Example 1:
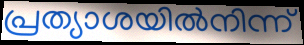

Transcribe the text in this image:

പ്രത്യാശയിൽനിന്ന്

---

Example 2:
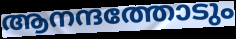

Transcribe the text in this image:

ആനന്ദത്തോടും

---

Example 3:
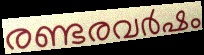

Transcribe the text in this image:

രണ്ടരവർഷം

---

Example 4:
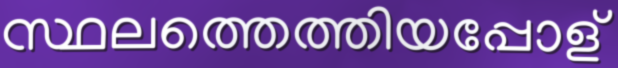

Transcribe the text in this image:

സ്ഥലത്തെത്തിയപ്പോള്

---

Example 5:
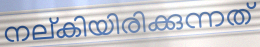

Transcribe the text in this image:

നല്കിയിരിക്കുന്നത്